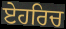
ਏਹਰਿਚ